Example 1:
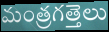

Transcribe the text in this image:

మంత్రగత్తెలు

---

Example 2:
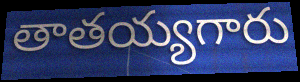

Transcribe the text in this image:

తాతయ్యగారు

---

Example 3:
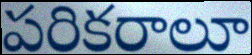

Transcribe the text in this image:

పరికరాలూ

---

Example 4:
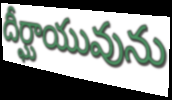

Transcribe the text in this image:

దీర్ఘాయువును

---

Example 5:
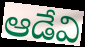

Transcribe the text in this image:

ఆడేవి